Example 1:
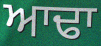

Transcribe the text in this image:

ਆਢਾ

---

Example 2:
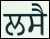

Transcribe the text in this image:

ਲਸੈ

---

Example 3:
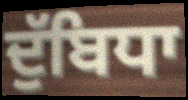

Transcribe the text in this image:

ਦੁੱਬਿਧਾ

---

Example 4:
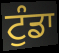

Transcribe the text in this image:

ਟੁੰਡਾ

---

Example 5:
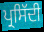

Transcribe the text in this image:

ਪ੍ਰਸਿੱਦੀ